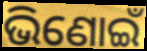
ଭିଣୋଇଁ